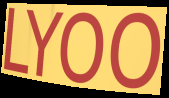
LYOO